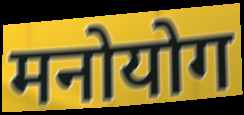
मनोयोग